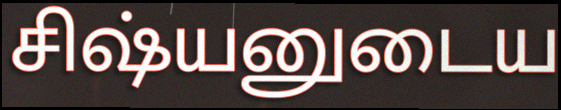
சிஷ்யனுடைய